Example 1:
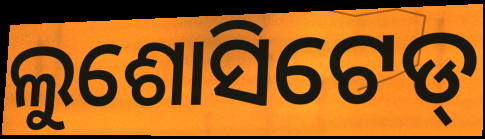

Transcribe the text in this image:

ଲୁଶୋସିଟେଡ୍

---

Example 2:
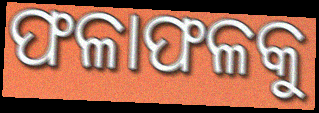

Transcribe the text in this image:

ଫଳାଫଳକୁ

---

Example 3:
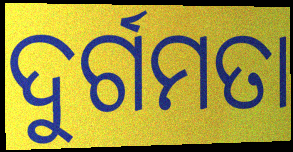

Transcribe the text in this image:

ଦୁର୍ଗମତା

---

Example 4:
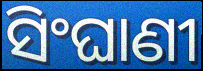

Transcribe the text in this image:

ସିଂଘାଣୀ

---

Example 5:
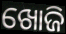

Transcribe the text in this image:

ଖୋଜି